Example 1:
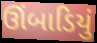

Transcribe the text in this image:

ઊંબાડિયું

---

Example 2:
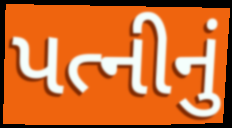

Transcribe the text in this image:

પત્નીનું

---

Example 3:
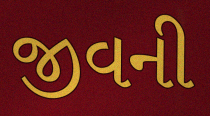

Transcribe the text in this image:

જીવની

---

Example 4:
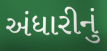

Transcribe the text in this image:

અંધારીનું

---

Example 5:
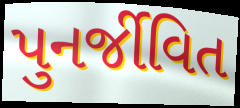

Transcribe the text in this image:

પુનર્જીવિત